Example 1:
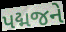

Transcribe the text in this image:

પદ્મજને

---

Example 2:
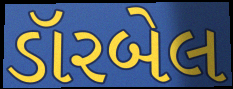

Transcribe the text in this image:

ડૉરબેલ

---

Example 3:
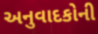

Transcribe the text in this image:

અનુવાદકોની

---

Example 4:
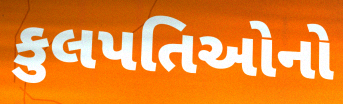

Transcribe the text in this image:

કુલપતિઓનો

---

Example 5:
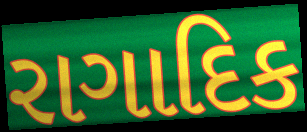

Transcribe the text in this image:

રાગાદિક